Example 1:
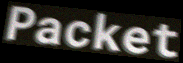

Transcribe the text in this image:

Packet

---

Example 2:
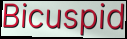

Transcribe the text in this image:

Bicuspid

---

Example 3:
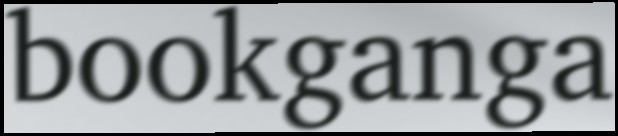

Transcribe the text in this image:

bookganga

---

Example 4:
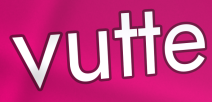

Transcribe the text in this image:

vutte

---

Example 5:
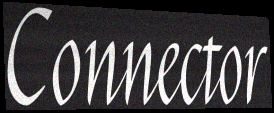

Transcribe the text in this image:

Connector